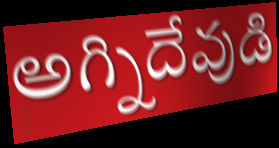
అగ్నిదేవుడి